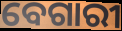
ବେଗାରୀ